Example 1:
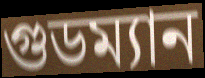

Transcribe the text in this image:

গুডম্যান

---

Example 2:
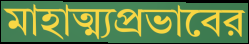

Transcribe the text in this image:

মাহাত্ম্যপ্রভাবের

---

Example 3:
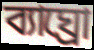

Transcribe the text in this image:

ব্যাঘ্রো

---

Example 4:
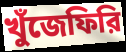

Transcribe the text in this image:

খুঁজেফিরি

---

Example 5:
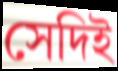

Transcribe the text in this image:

সেদিই